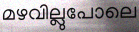
മഴവില്ലുപോലെ